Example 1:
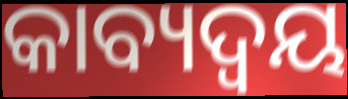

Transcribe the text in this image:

କାବ୍ୟଦ୍ୱୟ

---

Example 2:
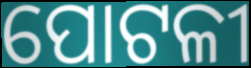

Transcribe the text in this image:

ପୋଟଳୀ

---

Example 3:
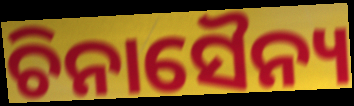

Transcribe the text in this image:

ଚିନାସୈନ୍ୟ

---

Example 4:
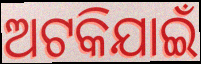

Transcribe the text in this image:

ଅଟକିଯାଇଁ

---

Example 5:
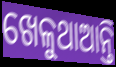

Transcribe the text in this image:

ଖେଳୁଥାଆନ୍ତି